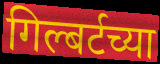
गिल्बर्टच्या